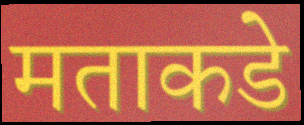
मताकडे